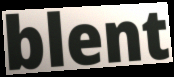
blent